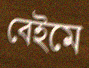
বেইমে